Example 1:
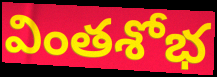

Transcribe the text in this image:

వింతశోభ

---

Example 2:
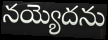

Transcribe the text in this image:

నయ్యెదను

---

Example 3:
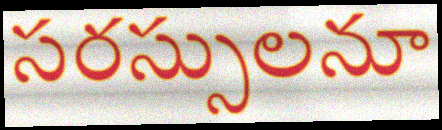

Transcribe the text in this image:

సరస్సులనూ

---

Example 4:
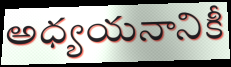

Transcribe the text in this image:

అధ్యయనానికీ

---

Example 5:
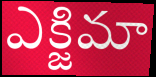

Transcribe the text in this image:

ఎక్జిమా